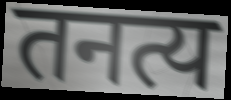
तनत्य